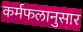
कर्मफलानुसार